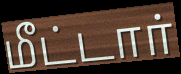
மீட்டார்